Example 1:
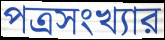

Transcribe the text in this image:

পত্রসংখ্যার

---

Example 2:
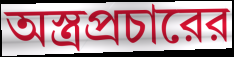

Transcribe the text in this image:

অস্ত্রপ্রচারের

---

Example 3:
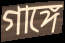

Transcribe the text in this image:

গাঙ্গে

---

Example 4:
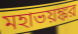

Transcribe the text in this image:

মহাভয়ঙ্কর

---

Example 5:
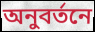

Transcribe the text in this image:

অনুবর্তনে